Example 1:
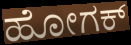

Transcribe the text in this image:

ಹೋಗಕ್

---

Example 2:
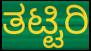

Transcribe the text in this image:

ತಟ್ಟಿರಿ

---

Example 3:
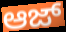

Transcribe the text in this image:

ಆಜ್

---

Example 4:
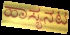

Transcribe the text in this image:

ಹಾಸ್ಯನಟ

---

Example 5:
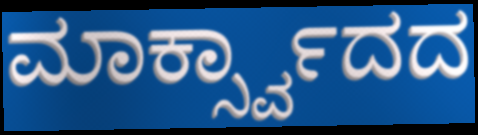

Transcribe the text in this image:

ಮಾರ್ಕ್ಸ್ವಾದದ